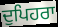
ਦੁਪਿਹਰਾ